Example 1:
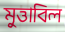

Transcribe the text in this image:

মুত্তাবিল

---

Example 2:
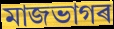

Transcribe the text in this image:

মাজভাগৰ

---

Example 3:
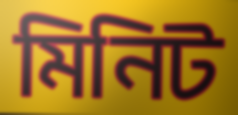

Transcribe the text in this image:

মিনিট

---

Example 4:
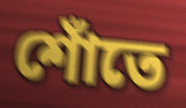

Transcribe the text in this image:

শোঁতে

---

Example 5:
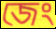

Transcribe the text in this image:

জেং